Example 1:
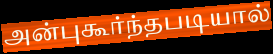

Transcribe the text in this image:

அன்புகூர்ந்தபடியால்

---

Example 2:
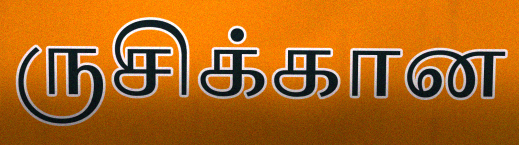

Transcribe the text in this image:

ருசிக்கான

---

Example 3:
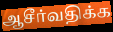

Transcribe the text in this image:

ஆசீர்வதிக்க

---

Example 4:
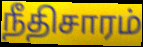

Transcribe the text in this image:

நீதிசாரம்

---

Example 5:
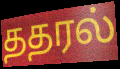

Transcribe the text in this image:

ததரல்